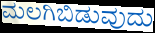
ಮಲಗಿಬಿಡುವುದು